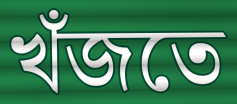
খঁজতে